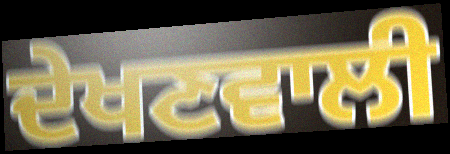
ਦੇਖਣਵਾਲੀ